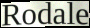
Rodale